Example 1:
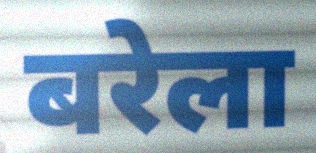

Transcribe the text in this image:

बरेला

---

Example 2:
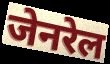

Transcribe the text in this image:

जेनरेल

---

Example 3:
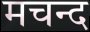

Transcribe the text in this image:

मचन्द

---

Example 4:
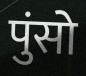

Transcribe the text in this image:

पुंसो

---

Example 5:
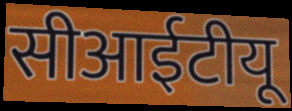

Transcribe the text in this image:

सीआईटीयू